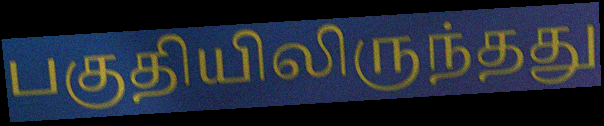
பகுதியிலிருந்தது